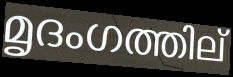
മൃദംഗത്തില്